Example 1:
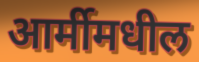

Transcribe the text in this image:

आर्मीमधील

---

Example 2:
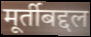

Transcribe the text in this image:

मूर्तीबद्दल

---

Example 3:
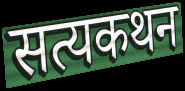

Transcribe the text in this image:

सत्यकथन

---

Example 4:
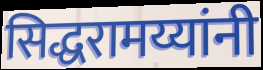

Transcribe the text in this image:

सिद्धरामय्यांनी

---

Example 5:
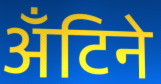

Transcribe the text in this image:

अँटिने